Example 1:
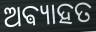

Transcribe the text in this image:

ଅଵ୍ୟାହତ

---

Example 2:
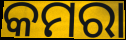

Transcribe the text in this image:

କମରା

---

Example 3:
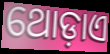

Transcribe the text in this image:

ଥୋଡ଼ାଏ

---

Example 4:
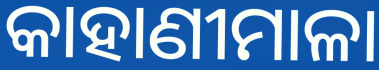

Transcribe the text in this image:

କାହାଣୀମାଳା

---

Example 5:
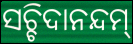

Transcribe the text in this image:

ସଚ୍ଚିଦାନନ୍ଦମ୍